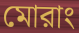
মোরাং